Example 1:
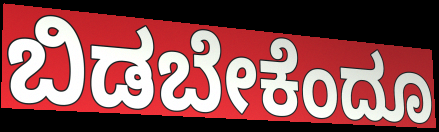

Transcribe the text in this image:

ಬಿಡಬೇಕೆಂದೂ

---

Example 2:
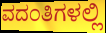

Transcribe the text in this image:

ವದಂತಿಗಳಲ್ಲಿ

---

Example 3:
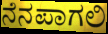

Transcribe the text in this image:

ನೆನಪಾಗಲಿ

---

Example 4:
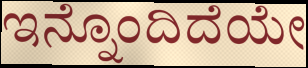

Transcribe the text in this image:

ಇನ್ನೊಂದಿದೆಯೇ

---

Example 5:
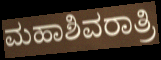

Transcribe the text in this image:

ಮಹಾಶಿವರಾತ್ರಿ